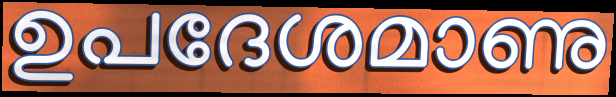
ഉപദേശമാണു